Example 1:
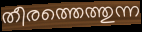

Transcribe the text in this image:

തീരത്തെത്തുന്ന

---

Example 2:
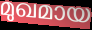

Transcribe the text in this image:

മുഖമായ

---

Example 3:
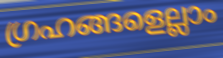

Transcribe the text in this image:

ഗ്രഹങ്ങളെല്ലാം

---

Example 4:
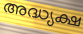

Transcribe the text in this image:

അദ്ധ്യക്ഷ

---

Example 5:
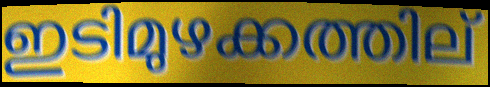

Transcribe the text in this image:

ഇടിമുഴക്കത്തില്